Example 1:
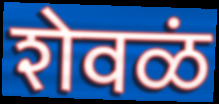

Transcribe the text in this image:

शेवळं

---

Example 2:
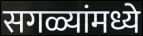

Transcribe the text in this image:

सगळ्यांमध्ये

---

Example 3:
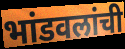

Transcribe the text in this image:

भांडवलांची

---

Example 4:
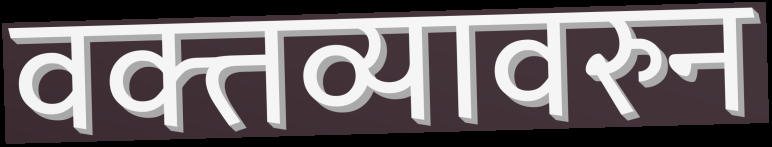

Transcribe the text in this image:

वक्तव्यावरुन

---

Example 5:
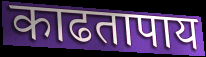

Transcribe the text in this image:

काढतापाय